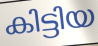
കിട്ടിയ